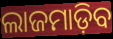
ଲାଜମାଡ଼ିବ